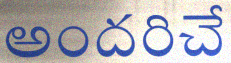
అందరిచే